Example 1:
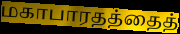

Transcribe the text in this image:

மகாபாரதத்தைத்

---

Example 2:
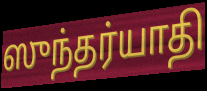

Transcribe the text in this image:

ஸுந்தர்யாதி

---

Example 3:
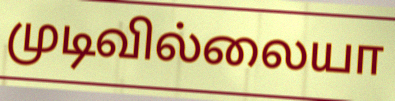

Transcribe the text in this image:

முடிவில்லையா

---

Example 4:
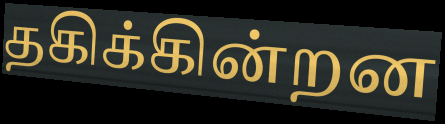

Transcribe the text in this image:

தகிக்கின்றன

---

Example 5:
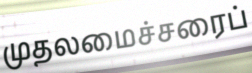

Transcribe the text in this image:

முதலமைச்சரைப்